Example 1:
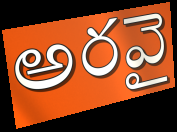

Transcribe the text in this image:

అరవై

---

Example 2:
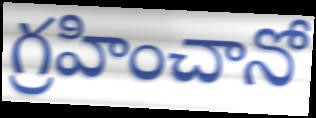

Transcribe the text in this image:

గ్రహించానో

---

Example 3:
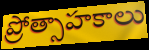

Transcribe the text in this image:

ప్రోత్సాహకాలు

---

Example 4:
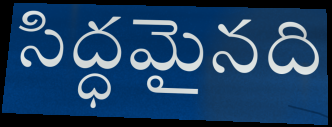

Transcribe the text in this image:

సిద్ధమైనది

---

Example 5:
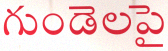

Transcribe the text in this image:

గుండెలపై